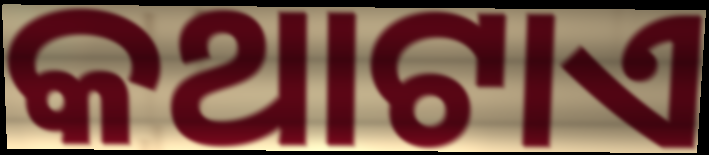
କଥାଟାଏ